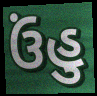
ઉંહુ